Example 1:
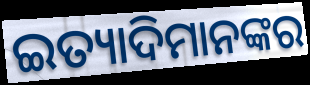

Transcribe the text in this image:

ଇତ୍ୟାଦିମାନଙ୍କର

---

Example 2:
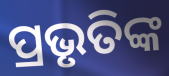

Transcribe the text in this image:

ପ୍ରଭୃତିଙ୍କ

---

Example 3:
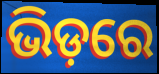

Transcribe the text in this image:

ଭିଡ଼ରେ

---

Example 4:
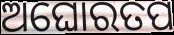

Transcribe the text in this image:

ଅଘୋରତପ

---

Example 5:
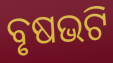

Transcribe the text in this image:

ବୃଷଭଟି